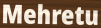
Mehretu